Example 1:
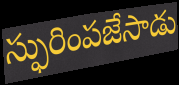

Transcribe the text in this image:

స్ఫురింపజేసాడు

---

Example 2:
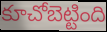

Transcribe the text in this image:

కూచోబెట్టింది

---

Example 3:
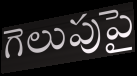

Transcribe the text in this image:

గెలుపుపై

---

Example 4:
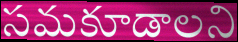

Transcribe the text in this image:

సమకూడాలని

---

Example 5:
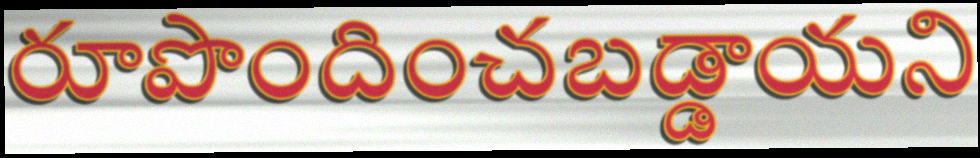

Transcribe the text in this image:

రూపొందించబడ్డాయని